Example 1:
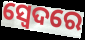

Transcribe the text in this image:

ସ୍ଵେଦରେ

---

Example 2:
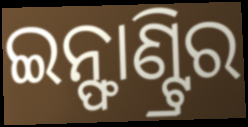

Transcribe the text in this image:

ଇନ୍ଫାଣ୍ଟ୍ରିର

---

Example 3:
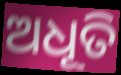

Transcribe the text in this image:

ଅଧୂତି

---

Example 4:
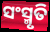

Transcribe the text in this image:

ସଂସ୍ମୃତି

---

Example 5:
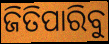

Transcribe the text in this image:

ଜିତିପାରିବୁ